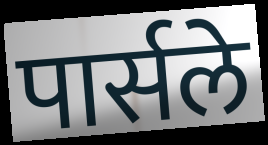
पार्सले